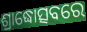
ଶ୍ରାଦ୍ଧୋତ୍ସବରେ